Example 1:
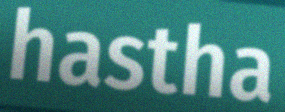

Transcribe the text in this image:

hastha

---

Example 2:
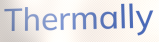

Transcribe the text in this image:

Thermally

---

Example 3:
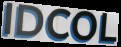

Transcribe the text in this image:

IDCOL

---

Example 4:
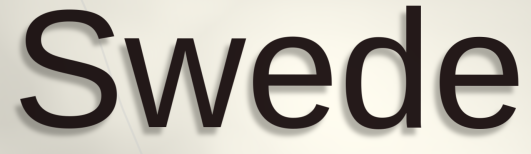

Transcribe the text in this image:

Swede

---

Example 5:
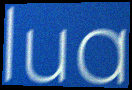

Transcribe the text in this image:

lua